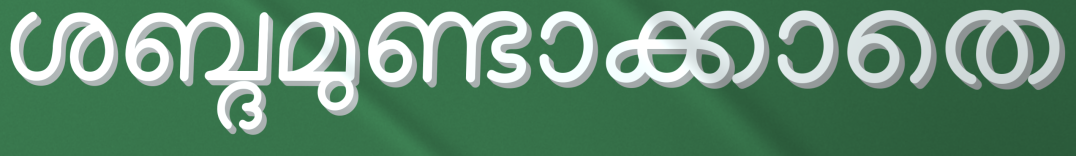
ശബ്ദമുണ്ടാക്കാതെ